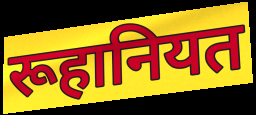
रूहानियत